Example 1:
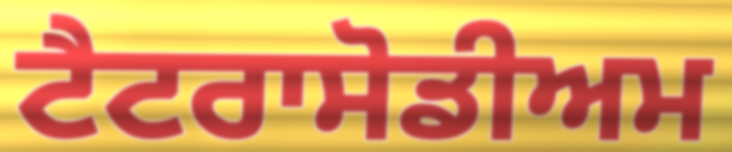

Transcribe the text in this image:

ਟੈਟਰਾਸੋਡੀਅਮ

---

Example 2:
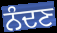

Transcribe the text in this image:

ਨੰਦਣ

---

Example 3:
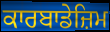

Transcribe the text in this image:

ਕਾਰਬਾਡੇਜ਼ਿਮ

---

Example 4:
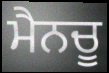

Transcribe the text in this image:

ਮੈਨਚੂ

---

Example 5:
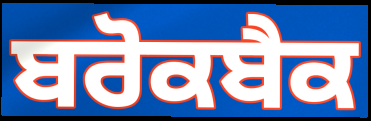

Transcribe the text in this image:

ਬਰੋਕਬੈਕ